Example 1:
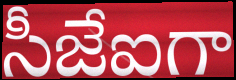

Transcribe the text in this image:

సీజేఐగా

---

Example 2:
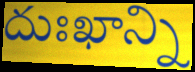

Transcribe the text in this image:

దుఃఖాన్ని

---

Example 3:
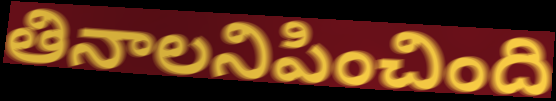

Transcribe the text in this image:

తినాలనిపించింది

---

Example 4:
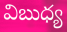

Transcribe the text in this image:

విబుధ్య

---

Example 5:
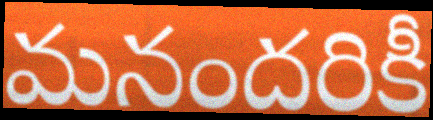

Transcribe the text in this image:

మనందరికీ